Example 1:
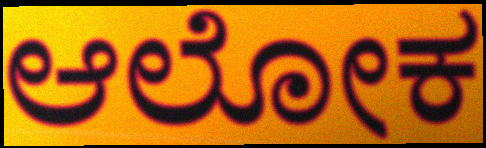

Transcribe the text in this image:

ಆಲೋಕ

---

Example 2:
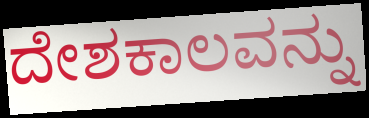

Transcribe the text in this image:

ದೇಶಕಾಲವನ್ನು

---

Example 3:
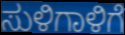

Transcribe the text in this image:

ಸುಳಿಗಾಳಿಗೆ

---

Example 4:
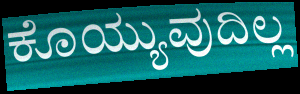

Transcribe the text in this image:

ಕೊಯ್ಯುವುದಿಲ್ಲ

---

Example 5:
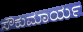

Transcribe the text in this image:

ಸೌಕುಮಾರ್ಯ